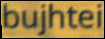
bujhtei